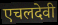
एचलदेवी